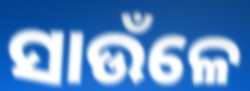
ସାଉଁଳେ